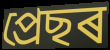
প্ৰেছৰ